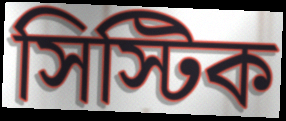
সিস্টিক